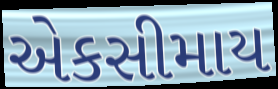
એકસીમાય